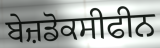
ਬੇਜ਼ਡੋਕਸੀਫੀਨ